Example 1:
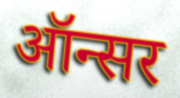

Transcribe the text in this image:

ऑन्सर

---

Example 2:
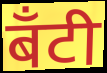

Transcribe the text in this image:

बँटी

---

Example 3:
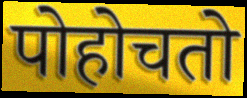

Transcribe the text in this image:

पोहोचतो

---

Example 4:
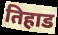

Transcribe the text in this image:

तिहाड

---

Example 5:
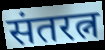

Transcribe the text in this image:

संतरत्न